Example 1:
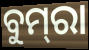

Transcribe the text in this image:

ବୁମ୍‌ରା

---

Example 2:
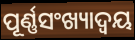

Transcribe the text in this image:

ପୂର୍ଣ୍ଣସଂଖ୍ୟାଦ୍ଵୟ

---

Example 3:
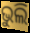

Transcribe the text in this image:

ଭୁଲି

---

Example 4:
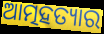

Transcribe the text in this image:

ଆତ୍ମହତ୍ୟାର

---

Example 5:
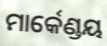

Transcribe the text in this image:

ମାର୍କେଣ୍ଡୟ